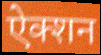
ऐक्शन